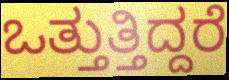
ಒತ್ತುತ್ತಿದ್ದರೆ